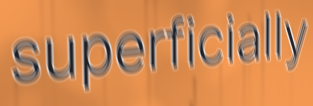
superficially